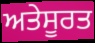
ਅਤੇਸੂਰਤ